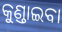
କୁଣ୍ଡାଇବା